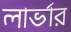
লার্ভার